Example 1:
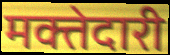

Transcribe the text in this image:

मक्तेदारी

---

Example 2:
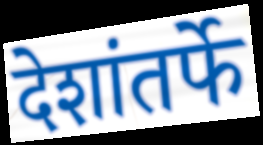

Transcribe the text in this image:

देशांतर्फे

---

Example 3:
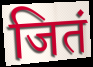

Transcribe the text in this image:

जितं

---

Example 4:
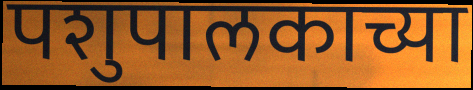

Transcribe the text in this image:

पशुपालकाच्या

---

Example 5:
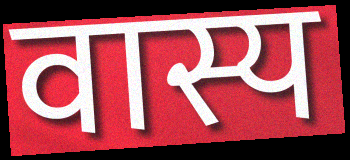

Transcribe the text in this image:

वास्य